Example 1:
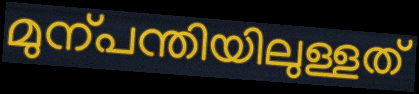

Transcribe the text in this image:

മുന്പന്തിയിലുള്ളത്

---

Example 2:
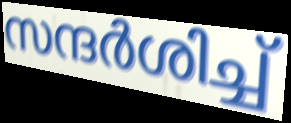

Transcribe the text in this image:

സന്ദർശിച്ച്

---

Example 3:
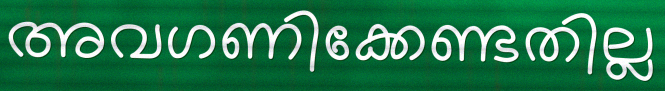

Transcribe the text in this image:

അവഗണിക്കേണ്ടതില്ല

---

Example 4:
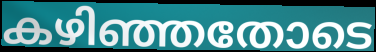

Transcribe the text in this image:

കഴിഞ്ഞതോടെ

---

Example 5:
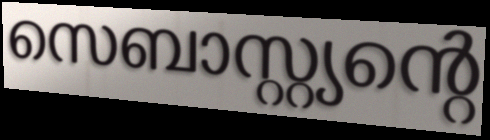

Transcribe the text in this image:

സെബാസ്റ്റ്യന്റെ